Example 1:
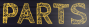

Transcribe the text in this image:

PARTS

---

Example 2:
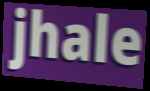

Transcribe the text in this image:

jhale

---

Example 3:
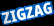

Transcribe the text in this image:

ZIGZAG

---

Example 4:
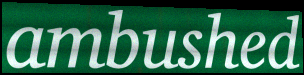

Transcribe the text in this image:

ambushed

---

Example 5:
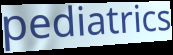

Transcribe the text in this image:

pediatrics